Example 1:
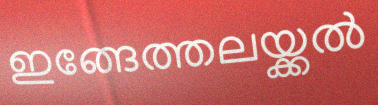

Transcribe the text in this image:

ഇങ്ങേത്തലയ്ക്കൽ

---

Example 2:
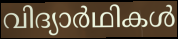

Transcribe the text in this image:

വിദ്യാർഥികൾ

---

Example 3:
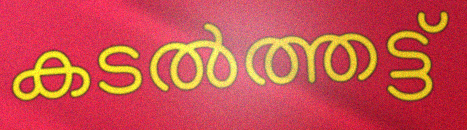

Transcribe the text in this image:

കടൽത്തട്ട്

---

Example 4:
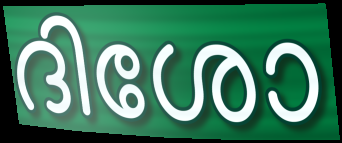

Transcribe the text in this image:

ദിശോ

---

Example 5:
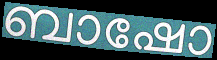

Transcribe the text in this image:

ബാഷോ